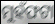
ମୁହଁଫଟା